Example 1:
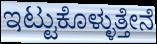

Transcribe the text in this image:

ಇಟ್ಟುಕೊಳ್ಳುತ್ತೇನೆ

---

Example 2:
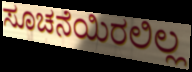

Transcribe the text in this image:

ಸೂಚನೆಯಿರಲಿಲ್ಲ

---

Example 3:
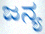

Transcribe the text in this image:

ಜನ್ಯ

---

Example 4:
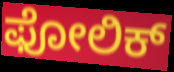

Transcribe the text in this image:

ಫೋಲಿಕ್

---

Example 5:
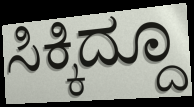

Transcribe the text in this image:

ಸಿಕ್ಕಿದ್ದೂ